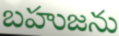
బహుజను